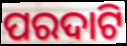
ପରଦାଟି